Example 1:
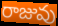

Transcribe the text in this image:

రాజువు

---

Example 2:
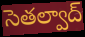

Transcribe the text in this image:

సెతల్వాద్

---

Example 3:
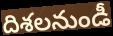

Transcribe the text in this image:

దిశలనుండీ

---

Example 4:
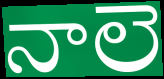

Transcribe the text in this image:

నాలె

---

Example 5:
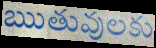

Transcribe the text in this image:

ఋతువులకు